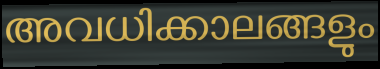
അവധിക്കാലങ്ങളും